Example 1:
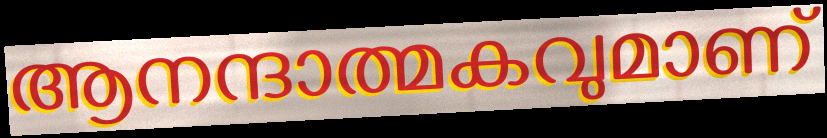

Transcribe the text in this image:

ആനന്ദാത്മകവുമാണ്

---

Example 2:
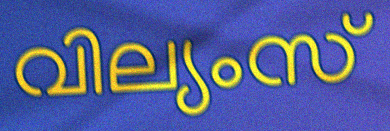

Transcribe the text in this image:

വില്യംസ്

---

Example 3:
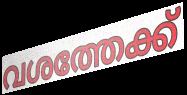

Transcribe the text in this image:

വശത്തേക്ക്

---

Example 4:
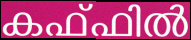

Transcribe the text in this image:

കഫ്ഫിൽ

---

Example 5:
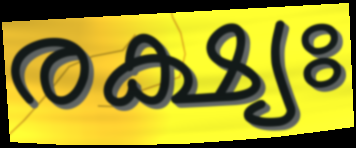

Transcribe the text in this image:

രക്ഷ്യഃ